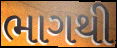
ભાગથી